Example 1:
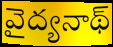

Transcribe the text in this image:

వైద్యనాథ్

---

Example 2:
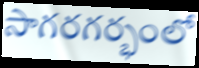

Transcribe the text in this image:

సాగరగర్భంలో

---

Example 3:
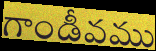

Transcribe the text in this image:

గాండీవము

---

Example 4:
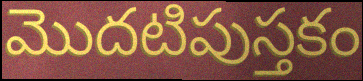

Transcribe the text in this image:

మొదటిపుస్తకం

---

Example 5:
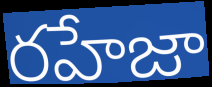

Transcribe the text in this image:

రహేజా